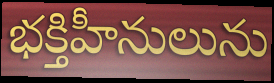
భక్తిహీనులును